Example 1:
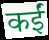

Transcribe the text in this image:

कईं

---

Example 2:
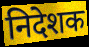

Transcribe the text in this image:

निदेशक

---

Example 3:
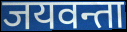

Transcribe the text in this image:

जयवन्ता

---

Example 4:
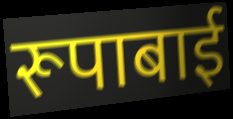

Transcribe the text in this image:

रूपाबाई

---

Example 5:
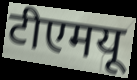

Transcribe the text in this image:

टीएमयू